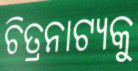
ଚିତ୍ରନାଟ୍ୟକୁ